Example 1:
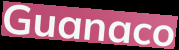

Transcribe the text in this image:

Guanaco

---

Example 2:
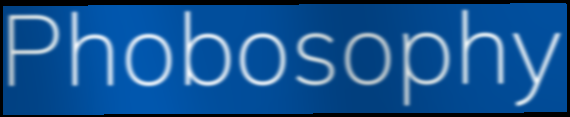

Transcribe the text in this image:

Phobosophy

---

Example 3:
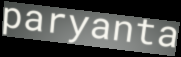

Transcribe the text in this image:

paryanta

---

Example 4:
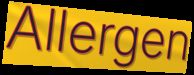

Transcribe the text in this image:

Allergen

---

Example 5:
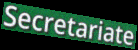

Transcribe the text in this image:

Secretariate